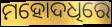
ମହୋଦଧିରେ